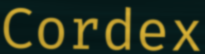
Cordex